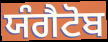
ਯੰਗੈਟੋਬ